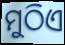
ମୁଠିଏ